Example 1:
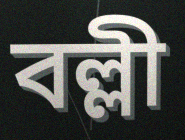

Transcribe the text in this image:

বল্লী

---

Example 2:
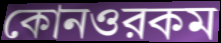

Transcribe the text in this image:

কোনওরকম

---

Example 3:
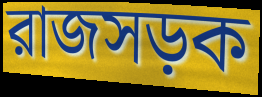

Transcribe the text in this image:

রাজসড়ক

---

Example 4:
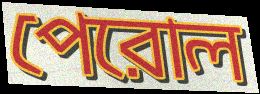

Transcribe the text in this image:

পেরোল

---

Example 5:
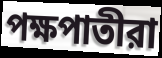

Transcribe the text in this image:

পক্ষপাতীরা